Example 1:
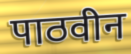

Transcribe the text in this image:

पाठवीन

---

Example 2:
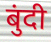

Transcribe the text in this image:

बुंदी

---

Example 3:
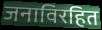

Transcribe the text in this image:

जनाविरहित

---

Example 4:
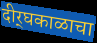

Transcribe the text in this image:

दीर्घकाळाचा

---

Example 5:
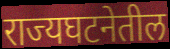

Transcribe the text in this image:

राज्यघटनेतील